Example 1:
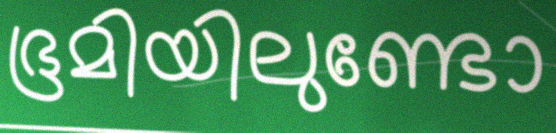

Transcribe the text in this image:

ഭൂമിയിലുണ്ടോ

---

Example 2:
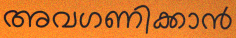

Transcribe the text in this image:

അവഗണിക്കാൻ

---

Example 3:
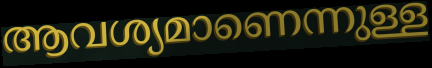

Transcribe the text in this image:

ആവശ്യമാണെന്നുള്ള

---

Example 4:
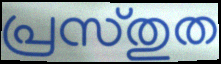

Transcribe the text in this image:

പ്രസ്തുത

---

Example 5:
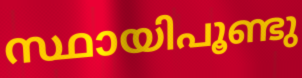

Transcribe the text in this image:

സ്ഥായിപൂണ്ടു